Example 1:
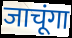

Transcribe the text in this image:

जाचूंगा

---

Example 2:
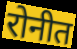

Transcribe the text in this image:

रोनीत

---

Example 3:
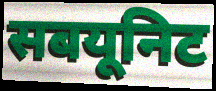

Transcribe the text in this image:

सबयूनिट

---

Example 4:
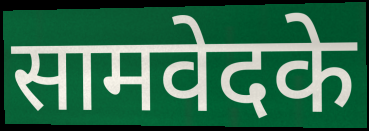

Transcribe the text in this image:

सामवेदके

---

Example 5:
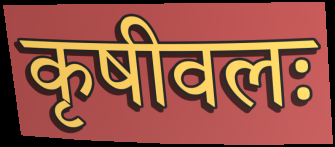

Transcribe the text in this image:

कृषीवलः